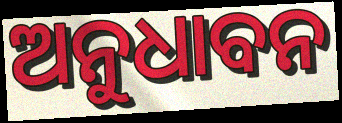
ଅନୁଧାବନ